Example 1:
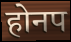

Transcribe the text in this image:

होनप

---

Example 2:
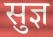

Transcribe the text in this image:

सुज्ञ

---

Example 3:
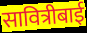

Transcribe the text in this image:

सावित्रीबाई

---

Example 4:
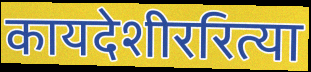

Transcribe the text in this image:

कायदेशीररित्या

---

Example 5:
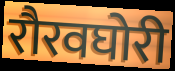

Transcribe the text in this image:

रौरवघोरी